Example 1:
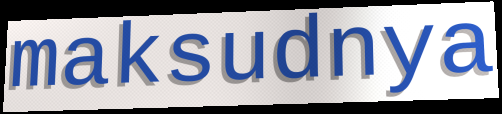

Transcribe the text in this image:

maksudnya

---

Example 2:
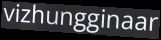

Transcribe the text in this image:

vizhungginaar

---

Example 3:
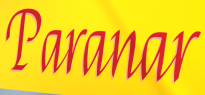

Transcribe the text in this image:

Paranar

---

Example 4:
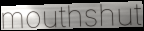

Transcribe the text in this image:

mouthshut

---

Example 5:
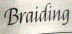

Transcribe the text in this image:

Braiding